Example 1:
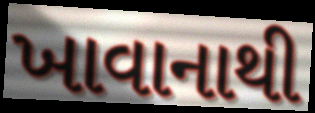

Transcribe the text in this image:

ખાવાનાથી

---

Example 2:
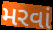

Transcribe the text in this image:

મરવાં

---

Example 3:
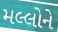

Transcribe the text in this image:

મલ્લોને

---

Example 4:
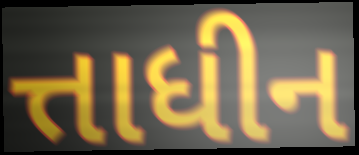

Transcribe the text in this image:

ત્તાધીન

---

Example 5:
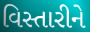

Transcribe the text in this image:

વિસ્તારીને